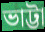
ভাট্টা